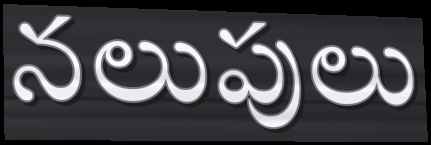
నలుపులు